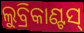
ଲୁବ୍ରିକାଣ୍ଟସ୍